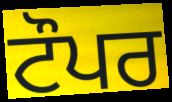
ਟੌਪਰ